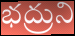
భద్రుని